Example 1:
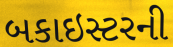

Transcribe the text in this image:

બકાઇસ્ટરની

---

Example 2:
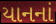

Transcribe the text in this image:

યાનનાં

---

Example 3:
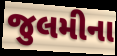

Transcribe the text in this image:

જુલમીના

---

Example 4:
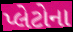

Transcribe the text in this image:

પ્લેટોના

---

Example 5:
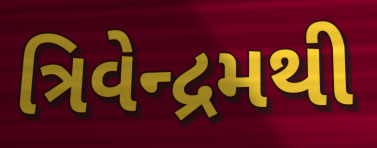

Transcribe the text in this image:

ત્રિવેન્દ્રમથી